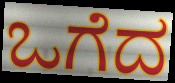
ಒಗೆದ